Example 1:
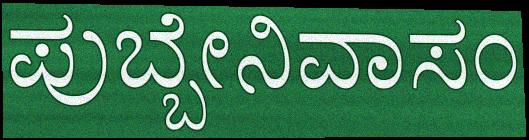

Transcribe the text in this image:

ಪುಬ್ಬೇನಿವಾಸಂ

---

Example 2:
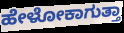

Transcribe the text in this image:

ಹೇಳೋಕಾಗುತ್ತಾ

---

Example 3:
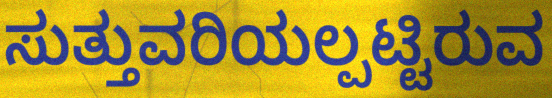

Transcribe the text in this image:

ಸುತ್ತುವರಿಯಲ್ಪಟ್ಟಿರುವ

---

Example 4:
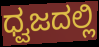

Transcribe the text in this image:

ಧ್ವಜದಲ್ಲಿ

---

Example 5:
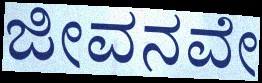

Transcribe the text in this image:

ಜೀವನವೇ